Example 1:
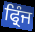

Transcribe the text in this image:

ਫ੍ਰਿੰਜ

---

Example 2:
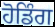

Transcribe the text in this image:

ਹੋਡਿੰਗ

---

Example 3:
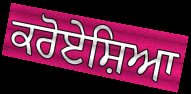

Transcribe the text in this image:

ਕਰੋਏਸ਼ਿਆ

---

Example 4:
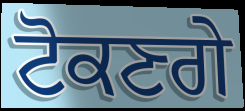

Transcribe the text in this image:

ਟੋਕਣਗੇ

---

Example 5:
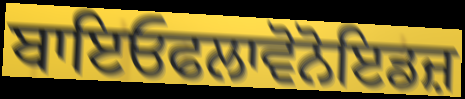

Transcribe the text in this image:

ਬਾਇਓਫਲਾਵੋਨੋਇਡਜ਼